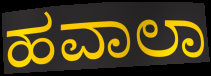
ಹವಾಲಾ